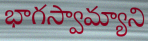
భాగస్వామ్యాని